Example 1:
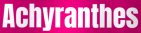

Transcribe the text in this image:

Achyranthes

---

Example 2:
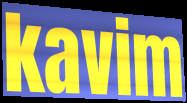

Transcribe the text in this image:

kavim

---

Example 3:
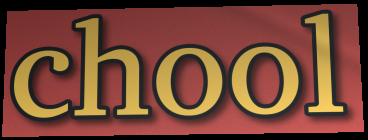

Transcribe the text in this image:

chool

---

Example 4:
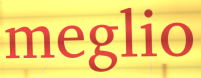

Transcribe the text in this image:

meglio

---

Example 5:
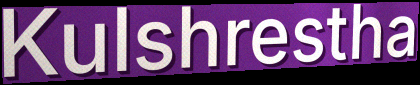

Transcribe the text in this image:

Kulshrestha